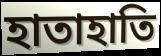
হাতাহাতি